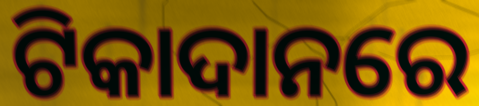
ଟିକାଦାନରେ